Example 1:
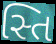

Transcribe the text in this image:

સ્તિ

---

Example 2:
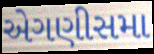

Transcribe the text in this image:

એગણીસમા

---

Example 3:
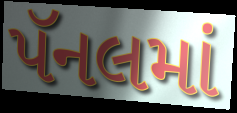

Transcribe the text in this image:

પૅનલમાં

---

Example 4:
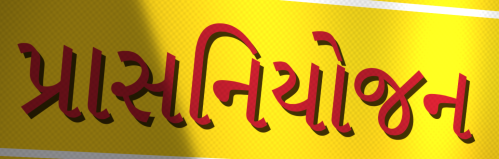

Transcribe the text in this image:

પ્રાસનિયોજન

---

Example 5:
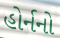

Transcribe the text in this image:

હોર્નનો